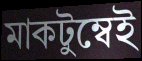
মাকটুম্বেই